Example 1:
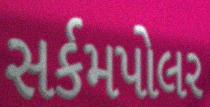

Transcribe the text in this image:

સર્કમપોલર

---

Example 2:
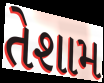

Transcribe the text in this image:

તેશામ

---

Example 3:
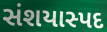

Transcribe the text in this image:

સંશયાસ્પદ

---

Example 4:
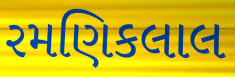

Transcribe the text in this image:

રમણિકલાલ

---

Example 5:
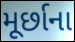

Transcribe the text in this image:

મૂર્છાના